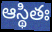
ఆస్థితః